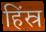
हिंस्र